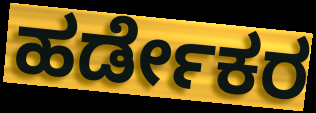
ಹರ್ಡೇಕರ